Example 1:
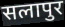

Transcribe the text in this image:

सलापुर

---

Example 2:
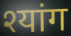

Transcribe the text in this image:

श्यांग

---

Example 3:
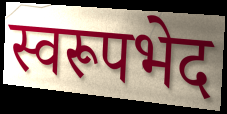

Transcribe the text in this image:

स्वरूपभेद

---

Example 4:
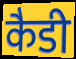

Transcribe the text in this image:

कैडी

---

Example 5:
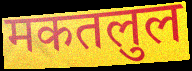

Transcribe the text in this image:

मकतलुल